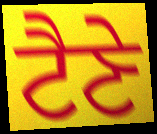
ਟੈਣੇ